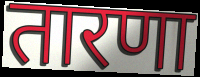
तारणा